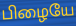
பிழையே